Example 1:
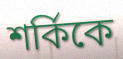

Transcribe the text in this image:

শর্কিকে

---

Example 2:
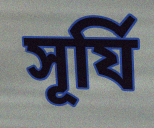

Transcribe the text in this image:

সূর্যি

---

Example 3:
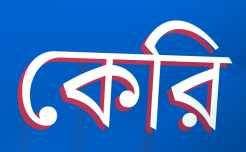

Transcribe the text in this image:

কেরি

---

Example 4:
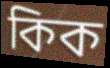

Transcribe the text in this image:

কিক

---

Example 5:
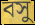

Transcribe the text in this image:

বসু